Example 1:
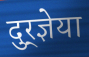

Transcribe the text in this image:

दुर्ज्ञेया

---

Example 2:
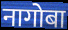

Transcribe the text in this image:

नागोबा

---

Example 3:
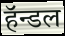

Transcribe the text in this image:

हॅन्डल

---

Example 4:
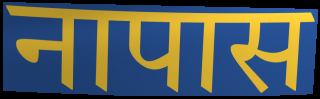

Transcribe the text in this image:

नापास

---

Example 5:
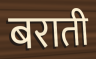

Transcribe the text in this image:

बराती